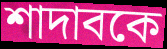
শাদাবকে